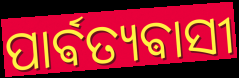
ପାର୍ଵତ୍ୟଵାସୀ